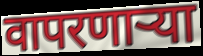
वापरणाऱ्या